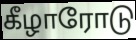
கீழாரோடு